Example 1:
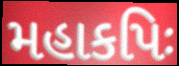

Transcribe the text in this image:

મહાકપિઃ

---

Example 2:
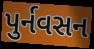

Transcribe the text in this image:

પુર્નવસન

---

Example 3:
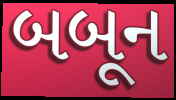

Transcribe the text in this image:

બબૂન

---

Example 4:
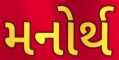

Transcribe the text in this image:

મનોર્થ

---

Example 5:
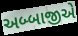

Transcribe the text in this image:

અબ્બાજીએ